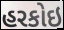
હરકોઇ